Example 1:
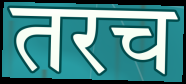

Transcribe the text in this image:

तरच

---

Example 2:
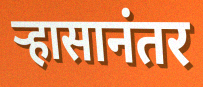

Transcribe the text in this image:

ऱ्हासानंतर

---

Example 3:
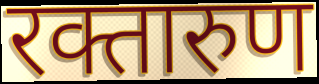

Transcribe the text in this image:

रक्तारुण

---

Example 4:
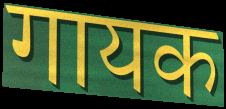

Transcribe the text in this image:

गायक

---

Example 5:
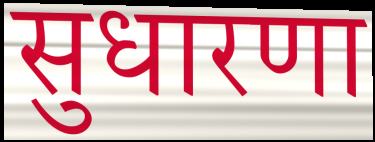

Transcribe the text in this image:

सुधारणा